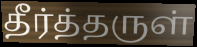
தீர்த்தருள்